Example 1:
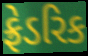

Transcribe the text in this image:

ફ્રેડરિક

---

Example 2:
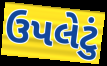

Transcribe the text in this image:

ઉપલેટું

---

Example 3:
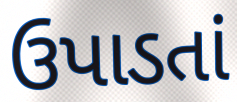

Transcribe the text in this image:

ઉપાડતાં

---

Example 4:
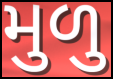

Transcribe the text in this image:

મુળુ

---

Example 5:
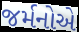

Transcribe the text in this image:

જર્મનોએ